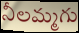
నీలమ్మగు